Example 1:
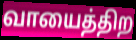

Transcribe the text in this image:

வாயைத்திற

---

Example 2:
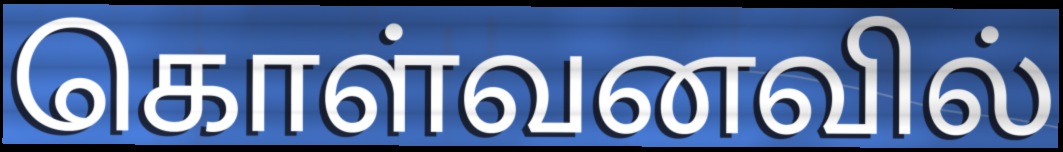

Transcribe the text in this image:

கொள்வனவில்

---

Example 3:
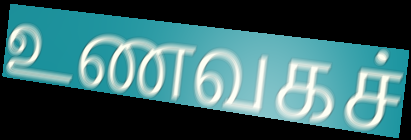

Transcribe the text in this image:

உணவகச்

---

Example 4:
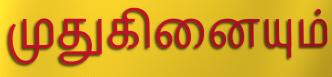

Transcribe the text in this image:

முதுகினையும்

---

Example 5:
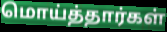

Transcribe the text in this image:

மொய்த்தார்கள்